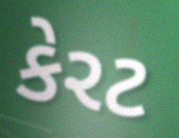
કેરટ